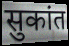
सुकांत